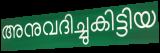
അനുവദിച്ചുകിട്ടിയ